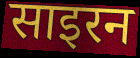
साइरन